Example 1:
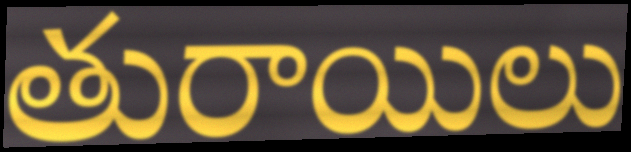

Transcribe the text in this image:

తురాయిలు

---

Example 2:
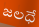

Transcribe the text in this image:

జలధే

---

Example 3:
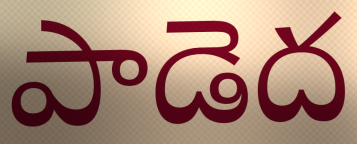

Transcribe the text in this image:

పాడెద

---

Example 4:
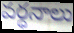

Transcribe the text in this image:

వర్ధనాలు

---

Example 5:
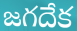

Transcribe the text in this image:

జగదేక